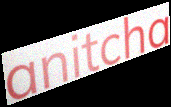
anitcha